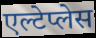
एल्टेप्लेस